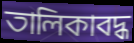
তালিকাবদ্ধ